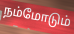
நம்மோடும்